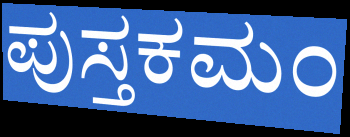
ಪುಸ್ತಕಮಂ